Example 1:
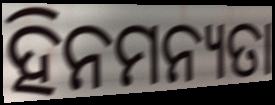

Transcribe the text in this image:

ହିନମନ୍ୟତା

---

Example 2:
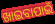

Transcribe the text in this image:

ଖାଇବାପାଇଁ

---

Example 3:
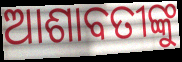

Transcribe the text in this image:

ଆଶାବତୀଙ୍କୁ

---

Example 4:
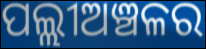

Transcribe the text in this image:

ପଲ୍ଲୀଅଞ୍ଚଳର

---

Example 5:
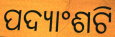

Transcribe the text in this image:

ପଦ୍ୟାଂଶଟି